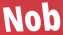
Nob